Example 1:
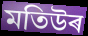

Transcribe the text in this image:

মতিউৰ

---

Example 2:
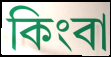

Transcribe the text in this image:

কিংবা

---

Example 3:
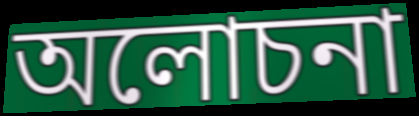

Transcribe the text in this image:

অলোচনা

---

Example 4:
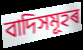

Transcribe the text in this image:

বাদিসমূহৰ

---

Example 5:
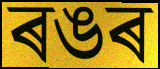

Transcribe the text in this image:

ৰঙৰ